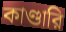
কাণ্ডারি